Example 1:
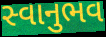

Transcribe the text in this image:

સ્વાનુભવ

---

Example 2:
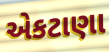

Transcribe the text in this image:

એકટાણા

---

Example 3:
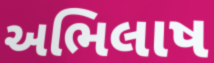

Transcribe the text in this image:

અભિલાષ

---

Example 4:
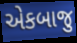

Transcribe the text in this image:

એકબાજુ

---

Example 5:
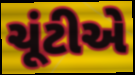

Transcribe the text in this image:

ચૂંટીએ